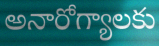
అనారోగ్యాలకు